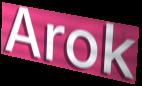
Arok